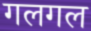
गलगल